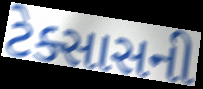
ટેક્સાસની